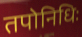
तपोनिधिः